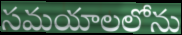
సమయాలలోను